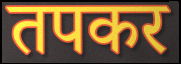
तपकर